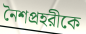
নৈশপ্রহরীকে